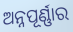
ଅନ୍ନପୂର୍ଣ୍ଣାର